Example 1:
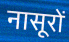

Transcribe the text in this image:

नासूरों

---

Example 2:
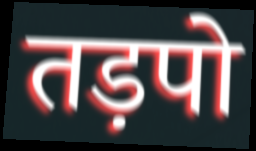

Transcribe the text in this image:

तड़पो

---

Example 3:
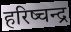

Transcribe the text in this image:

हरिष्चन्द्र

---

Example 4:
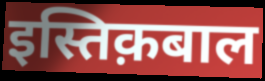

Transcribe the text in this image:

इस्तिक़बाल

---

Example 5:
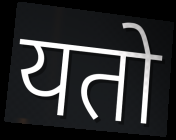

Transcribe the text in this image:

यतो